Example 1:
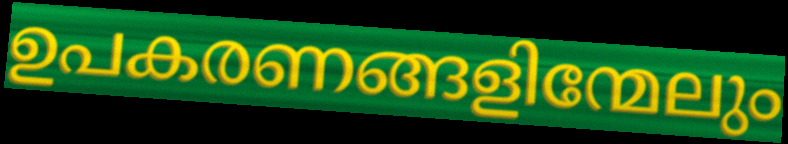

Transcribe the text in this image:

ഉപകരണങ്ങളിന്മേലും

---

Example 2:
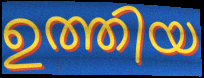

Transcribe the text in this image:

ഉത്തിയ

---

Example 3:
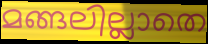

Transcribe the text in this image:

മങ്ങലില്ലാതെ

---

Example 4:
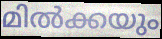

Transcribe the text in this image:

മിൽക്കയും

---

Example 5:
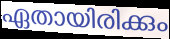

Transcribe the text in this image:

ഏതായിരിക്കും